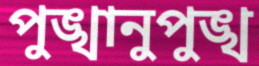
পুঙ্খানুপুঙ্খ